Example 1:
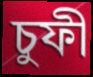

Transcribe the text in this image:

চুফী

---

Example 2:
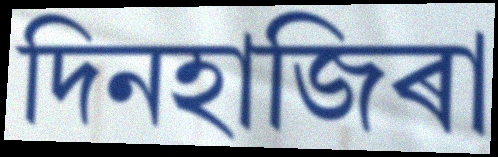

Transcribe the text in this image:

দিনহাজিৰা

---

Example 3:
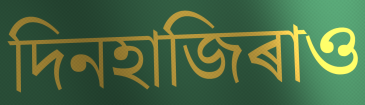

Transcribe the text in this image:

দিনহাজিৰাও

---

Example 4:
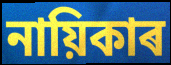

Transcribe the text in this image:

নায়িকাৰ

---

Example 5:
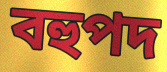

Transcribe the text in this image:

বহুপদ